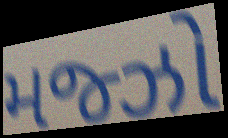
મજ્ઝો